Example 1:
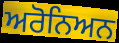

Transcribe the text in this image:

ਅਰੋਨਿਅਨ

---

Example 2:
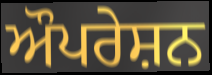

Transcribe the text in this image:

ਔਪਰੇਸ਼ਨ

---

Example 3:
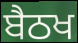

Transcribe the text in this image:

ਬੈਠਖ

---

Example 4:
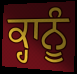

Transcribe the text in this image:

ਕ੍ਹਾਨੂੰ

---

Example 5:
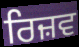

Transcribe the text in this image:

ਰਿਜ਼ਵ